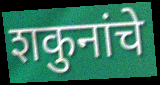
शकुनांचे